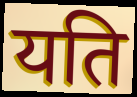
यति